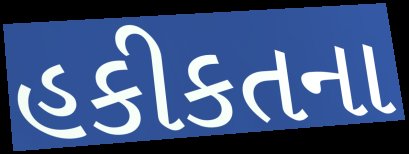
હકીકતના